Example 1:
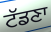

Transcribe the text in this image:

ਟੱਡਣਾ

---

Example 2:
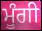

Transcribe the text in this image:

ਮੂੰਗੀ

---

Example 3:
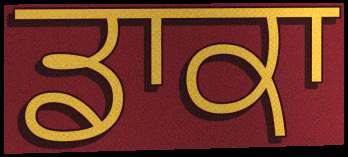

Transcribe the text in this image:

ਡਾਕਾ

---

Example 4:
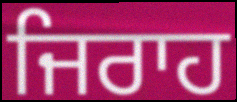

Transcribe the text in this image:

ਜਿਰਾਹ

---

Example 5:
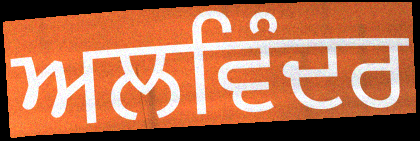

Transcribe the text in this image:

ਅਲਵਿੰਦਰ